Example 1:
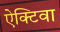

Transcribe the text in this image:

ऐक्टिवा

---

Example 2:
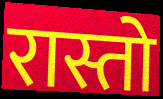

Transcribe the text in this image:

रास्तो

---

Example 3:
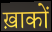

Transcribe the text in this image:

ख़ाकों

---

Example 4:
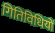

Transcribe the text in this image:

गितिविधियों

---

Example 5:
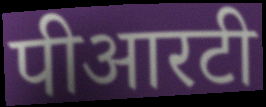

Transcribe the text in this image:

पीआरटी